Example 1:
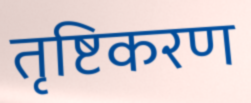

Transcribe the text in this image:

तृष्टिकरण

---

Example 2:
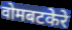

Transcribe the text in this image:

वोमबटकेरे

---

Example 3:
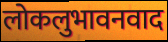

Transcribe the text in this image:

लोकलुभावनवाद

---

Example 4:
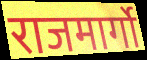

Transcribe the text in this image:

राजमार्गो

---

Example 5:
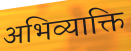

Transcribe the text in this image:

अभिव्याक्ति